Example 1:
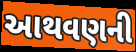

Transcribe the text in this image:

આથવણની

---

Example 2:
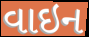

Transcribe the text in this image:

વાઇન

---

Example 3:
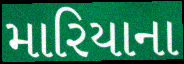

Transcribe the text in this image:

મારિયાના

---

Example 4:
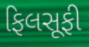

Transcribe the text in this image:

ફિલસૂફી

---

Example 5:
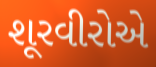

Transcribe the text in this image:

શૂરવીરોએ